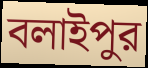
বলাইপুর